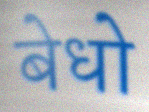
बेधो